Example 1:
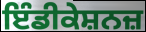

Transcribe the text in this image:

ਇੰਡੀਕੇਸ਼ਨਜ਼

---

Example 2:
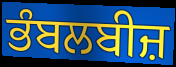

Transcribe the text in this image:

ਭੰਬਲਬੀਜ਼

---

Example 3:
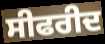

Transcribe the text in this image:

ਸੀਫਰੀਦ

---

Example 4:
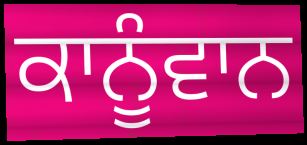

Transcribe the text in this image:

ਕਾਨੂੰਵਾਨ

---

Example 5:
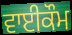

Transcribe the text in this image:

ਵਾਈਕੌਮ